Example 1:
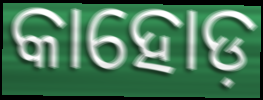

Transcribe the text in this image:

କାହୋଡ଼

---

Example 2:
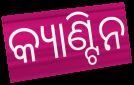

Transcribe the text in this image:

କ୍ୟାଣ୍ଟିନ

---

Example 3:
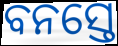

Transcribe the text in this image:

ବନସ୍ତେ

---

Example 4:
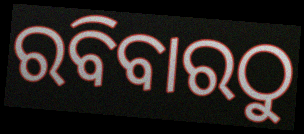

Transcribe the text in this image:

ରବିବାରଠୁ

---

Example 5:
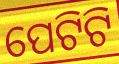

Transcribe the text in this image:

ପେଟିଟି